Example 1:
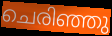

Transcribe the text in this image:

ചെരിഞ്ഞു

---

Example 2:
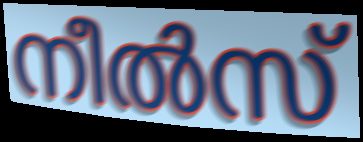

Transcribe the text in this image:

നീൽസ്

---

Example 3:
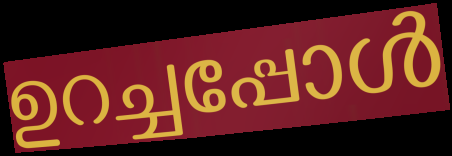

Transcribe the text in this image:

ഉറച്ചപ്പോൾ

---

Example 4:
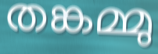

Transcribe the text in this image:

തങ്കമ്മു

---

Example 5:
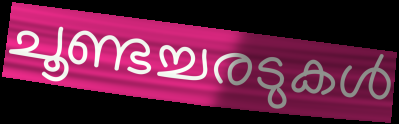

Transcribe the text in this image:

ചൂണ്ടച്ചരടുകൾ